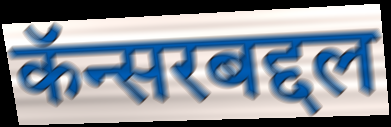
कॅन्सरबद्दल